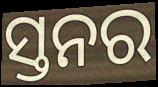
ସ୍ତନର